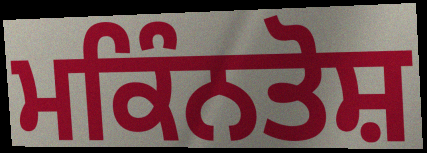
ਮਕਿੰਨਤੋਸ਼